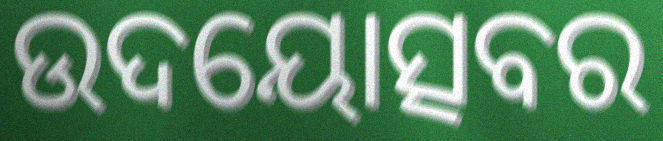
ଉଦୟୋତ୍ସବର